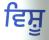
ਵਿਸ਼ੂ